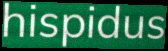
hispidus